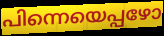
പിന്നെയെപ്പഴോ